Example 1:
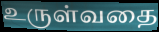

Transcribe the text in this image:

உருள்வதை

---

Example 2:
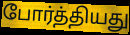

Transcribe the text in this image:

போர்த்தியது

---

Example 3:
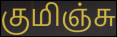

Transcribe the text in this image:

குமிஞ்சு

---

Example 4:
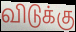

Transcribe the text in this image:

விடுக்கு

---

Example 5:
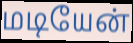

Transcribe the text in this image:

மடியேன்